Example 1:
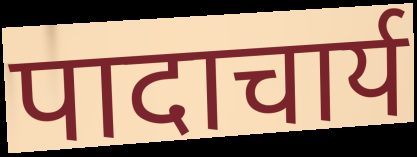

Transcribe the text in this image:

पादाचार्य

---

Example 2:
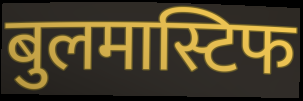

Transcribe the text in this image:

बुलमास्टिफ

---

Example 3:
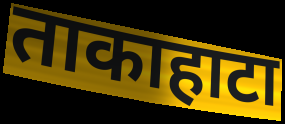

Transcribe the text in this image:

ताकाहाटा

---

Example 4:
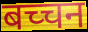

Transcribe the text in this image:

बच्‍चन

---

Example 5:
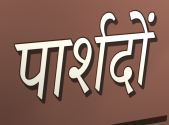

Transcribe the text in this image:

पार्शदों